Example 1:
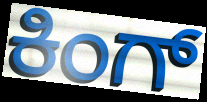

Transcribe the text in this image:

ಕಿಂಗ್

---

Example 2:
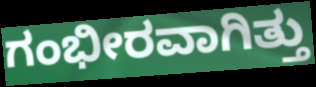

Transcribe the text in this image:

ಗಂಭೀರವಾಗಿತ್ತು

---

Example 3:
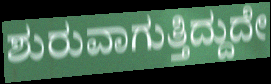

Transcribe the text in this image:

ಶುರುವಾಗುತ್ತಿದ್ದುದೇ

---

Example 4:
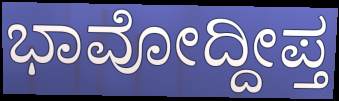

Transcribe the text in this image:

ಭಾವೋದ್ದೀಪ್ತ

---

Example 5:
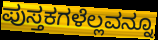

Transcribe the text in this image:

ಪುಸ್ತಕಗಳೆಲ್ಲವನ್ನೂ